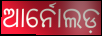
ଆର୍ନୋଲଡ଼